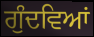
ਗੁੰਦਵਿਆਂ